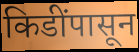
किडींपासून